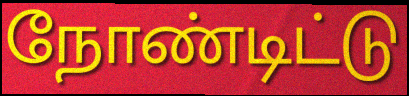
நோண்டிட்டு